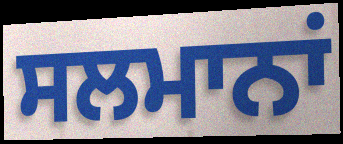
ਸਲਮਾਨਾਂ